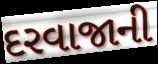
દરવાજાની